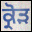
ਕ੍ਰੋੜ